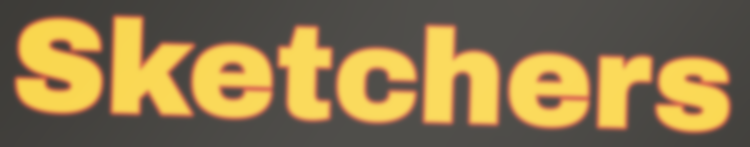
Sketchers